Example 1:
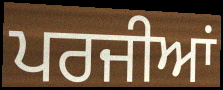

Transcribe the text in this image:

ਪਰਜੀਆਂ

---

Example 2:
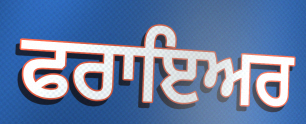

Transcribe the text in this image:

ਫਰਾਇਅਰ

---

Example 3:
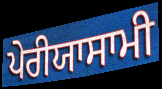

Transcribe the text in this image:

ਪੇਰੀਯਾਸਾਮੀ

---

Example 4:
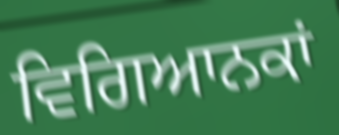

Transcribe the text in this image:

ਵਿਗਿਆਨਕਾਂ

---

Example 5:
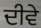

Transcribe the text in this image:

ਦੀਵੇ